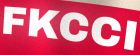
FKCCI